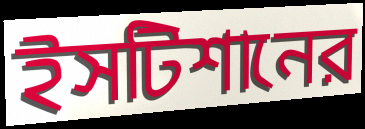
ইসটিশানের